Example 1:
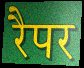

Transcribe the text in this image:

रैपर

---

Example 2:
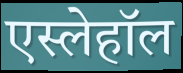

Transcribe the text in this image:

एस्लेहॉल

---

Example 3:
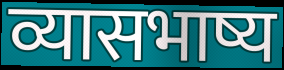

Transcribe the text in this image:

व्यासभाष्य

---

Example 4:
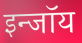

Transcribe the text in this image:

इन्जॉय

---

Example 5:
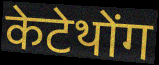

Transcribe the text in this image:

केटेथोंग